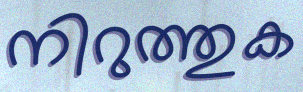
നിറുത്തുക